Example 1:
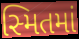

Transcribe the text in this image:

સ્મિતમાં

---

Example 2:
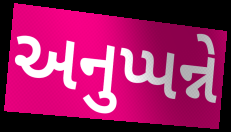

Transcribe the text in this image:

અનુપ્પન્ને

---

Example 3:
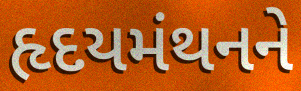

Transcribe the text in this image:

હૃદયમંથનને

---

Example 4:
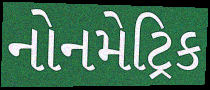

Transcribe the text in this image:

નોનમેટ્રિક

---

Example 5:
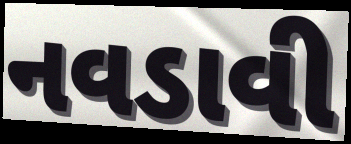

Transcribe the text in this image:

નવડાવી